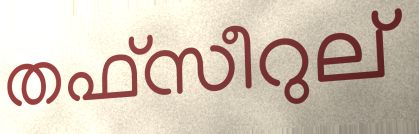
തഫ്സീറുല്